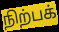
நிற்பக்